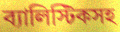
ব্যালিস্টিকসহ